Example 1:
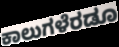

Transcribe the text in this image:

ಕಾಲುಗಳೆರಡೂ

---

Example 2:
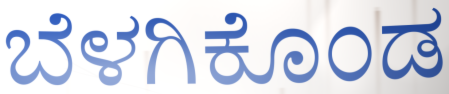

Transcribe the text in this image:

ಬೆಳಗಿಕೊಂಡ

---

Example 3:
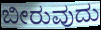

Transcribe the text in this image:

ಬೀರುವುದು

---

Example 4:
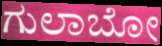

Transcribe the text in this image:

ಗುಲಾಬೋ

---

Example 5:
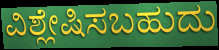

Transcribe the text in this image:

ವಿಶ್ಲೇಷಿಸಬಹುದು